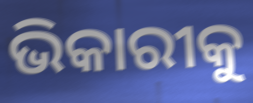
ଭିକାରୀକୁ